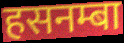
हसनम्बा